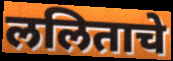
ललिताचे